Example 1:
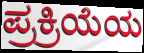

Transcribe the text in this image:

ಪ್ರಕ್ರಿಯೆಯ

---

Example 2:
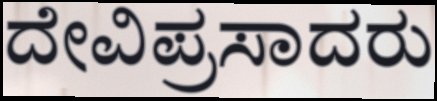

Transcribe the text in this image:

ದೇವಿಪ್ರಸಾದರು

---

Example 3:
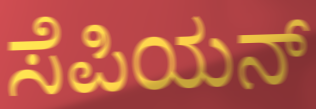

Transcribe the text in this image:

ಸೆಪಿಯನ್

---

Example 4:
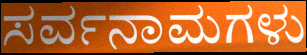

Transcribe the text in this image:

ಸರ್ವನಾಮಗಳು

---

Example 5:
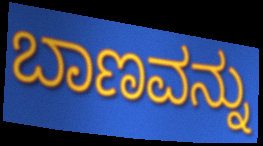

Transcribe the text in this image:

ಬಾಣವನ್ನು